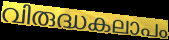
വിരുദ്ധകലാപം